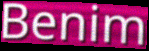
Benim